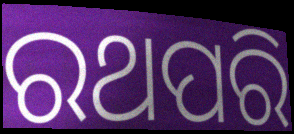
ରଥପରି